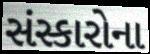
સંસ્કારોના